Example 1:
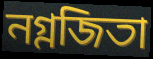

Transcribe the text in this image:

নগ্নজিতা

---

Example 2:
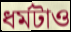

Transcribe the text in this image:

ধর্মটাও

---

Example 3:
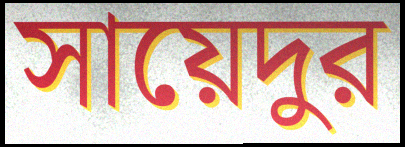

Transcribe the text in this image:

সায়েদুর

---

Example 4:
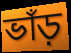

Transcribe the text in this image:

ভাঁড়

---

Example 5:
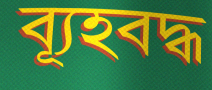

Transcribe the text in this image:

ব্যূহবদ্ধ